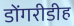
डोंगरीडीह